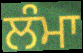
ਲੰਮਾ